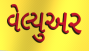
વેલ્યુઅર